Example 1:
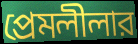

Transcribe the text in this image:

প্রেমলীলার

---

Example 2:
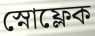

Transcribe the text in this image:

স্নোফ্লেক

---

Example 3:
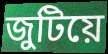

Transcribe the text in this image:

জুটিয়ে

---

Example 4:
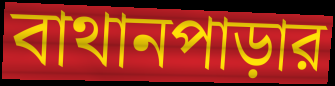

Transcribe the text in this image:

বাথানপাড়ার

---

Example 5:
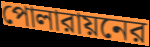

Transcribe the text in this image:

পোলারায়নের